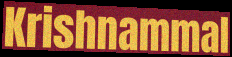
Krishnammal